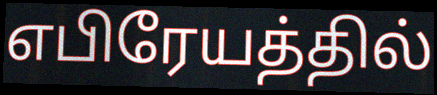
எபிரேயத்தில்